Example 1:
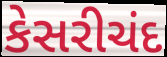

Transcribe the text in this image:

કેસરીચંદ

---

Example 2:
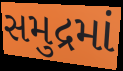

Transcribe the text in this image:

સમુદ્રમાં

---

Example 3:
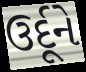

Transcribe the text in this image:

ઉર્દૂને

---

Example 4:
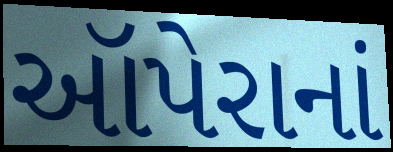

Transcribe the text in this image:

ઑપેરાનાં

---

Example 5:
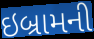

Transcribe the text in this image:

ઇબ્રામની